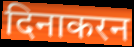
दिनाकरन